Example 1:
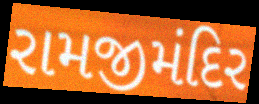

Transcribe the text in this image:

રામજીમંદિર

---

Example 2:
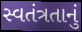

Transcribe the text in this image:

સ્વતંત્રતાનું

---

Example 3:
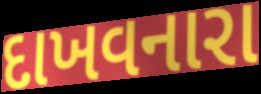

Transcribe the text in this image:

દાખવનારા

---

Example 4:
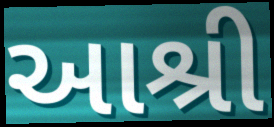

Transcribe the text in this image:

આશ્રી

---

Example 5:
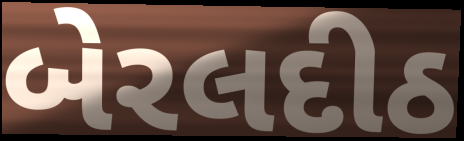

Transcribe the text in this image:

બેરલદીઠ